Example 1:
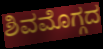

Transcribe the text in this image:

ಶಿವಮೊಗ್ಗದ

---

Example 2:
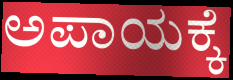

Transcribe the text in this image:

ಅಪಾಯಕ್ಕೆ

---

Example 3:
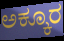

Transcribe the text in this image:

ಅಕ್ಕೂರ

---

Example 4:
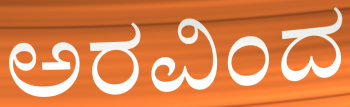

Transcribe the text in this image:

ಅರವಿಂದ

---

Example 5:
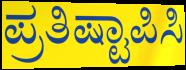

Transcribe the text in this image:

ಪ್ರತಿಷ್ಟಾಪಿಸಿ